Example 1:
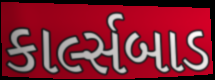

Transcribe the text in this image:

કાર્લ્સબાડ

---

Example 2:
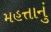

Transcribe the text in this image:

મહત્તાનું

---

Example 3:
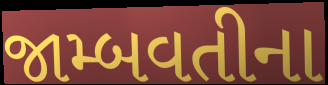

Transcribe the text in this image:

જામ્બવતીના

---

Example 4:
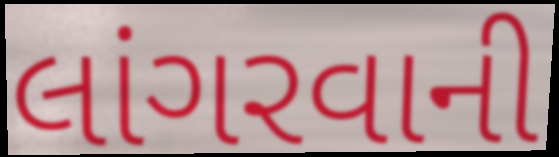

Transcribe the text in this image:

લાંગરવાની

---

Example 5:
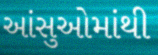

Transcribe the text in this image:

આંસુઓમાંથી